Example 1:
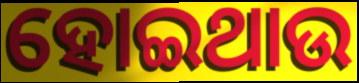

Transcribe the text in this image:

ହୋଇଥାଉ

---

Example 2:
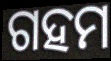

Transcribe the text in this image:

ଗହମ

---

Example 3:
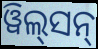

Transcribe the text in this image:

ୱିଲ୍‌ସନ୍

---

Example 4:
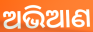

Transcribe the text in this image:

ଅଭିଆଣ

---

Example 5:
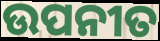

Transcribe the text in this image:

ଉପନୀତ